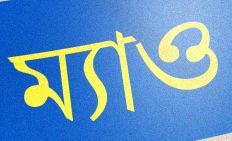
ম্যাও